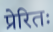
प्रेरितः